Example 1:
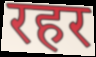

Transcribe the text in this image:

रहर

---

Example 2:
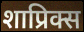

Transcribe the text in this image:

शाप्रिक्स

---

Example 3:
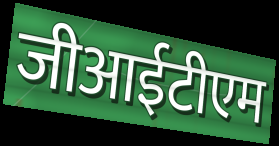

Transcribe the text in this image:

जीआईटीएम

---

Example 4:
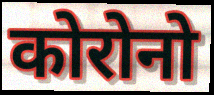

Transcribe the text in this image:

कोरोनो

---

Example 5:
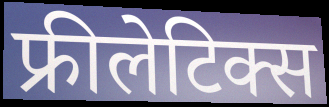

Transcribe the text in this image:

फ्रीलेटिक्स